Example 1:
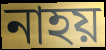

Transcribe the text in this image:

নাহয়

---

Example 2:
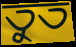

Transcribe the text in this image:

তুত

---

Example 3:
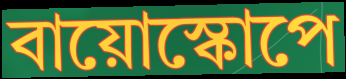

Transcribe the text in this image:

বায়োস্কোপে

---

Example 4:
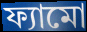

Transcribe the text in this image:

ফ্যামো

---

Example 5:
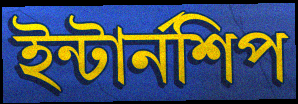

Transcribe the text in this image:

ইন্টার্নশিপ